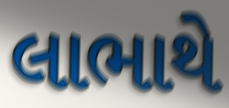
લાભાથે